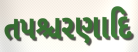
તપશ્ચરણાદિ